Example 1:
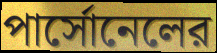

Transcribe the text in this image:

পার্সোনেলের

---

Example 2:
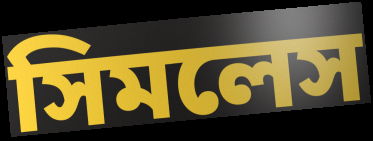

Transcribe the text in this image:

সিমলেস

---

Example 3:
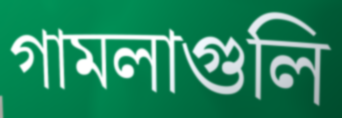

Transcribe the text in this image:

গামলাগুলি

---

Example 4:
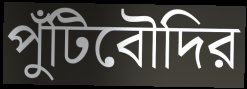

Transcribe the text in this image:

পুঁটিবৌদির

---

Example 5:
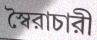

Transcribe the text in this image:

স্বৈরাচারী